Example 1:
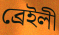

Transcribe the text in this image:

ব্রেইলী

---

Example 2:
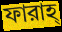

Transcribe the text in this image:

ফারাহ্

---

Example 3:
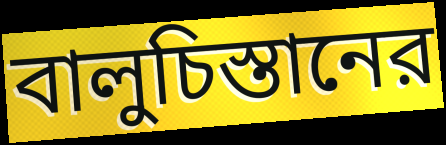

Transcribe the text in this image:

বালুচিস্তানের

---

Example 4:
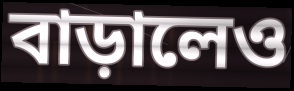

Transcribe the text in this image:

বাড়ালেও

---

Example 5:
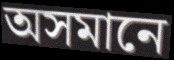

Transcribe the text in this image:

অসমানে